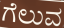
ಗೆಲುವ